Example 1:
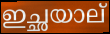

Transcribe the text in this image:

ഇച്ഛയാല്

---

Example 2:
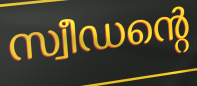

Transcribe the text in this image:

സ്വീഡന്റെ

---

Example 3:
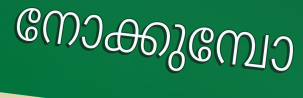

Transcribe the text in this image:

നോക്കുമ്പോ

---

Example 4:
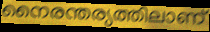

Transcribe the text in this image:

നൈരന്തര്യത്തിലാണ്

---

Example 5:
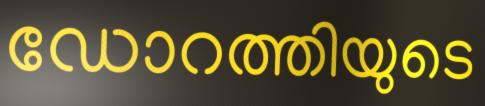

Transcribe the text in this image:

ഡോറത്തിയുടെ